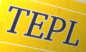
TEPL